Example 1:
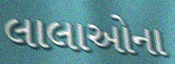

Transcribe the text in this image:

લાલાઓના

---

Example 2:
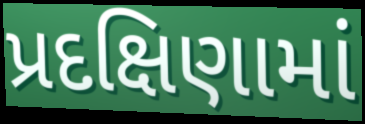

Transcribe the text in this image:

પ્રદક્ષિણામાં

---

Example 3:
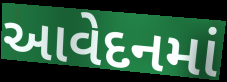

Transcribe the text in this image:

આવેદનમાં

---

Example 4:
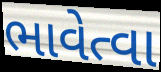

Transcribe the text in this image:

ભાવેત્વા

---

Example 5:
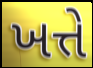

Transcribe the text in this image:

ખત્તે